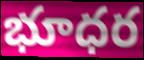
భూధర